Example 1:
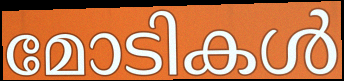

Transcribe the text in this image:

മോടികൾ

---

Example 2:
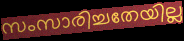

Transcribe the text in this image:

സംസാരിച്ചതേയില്ല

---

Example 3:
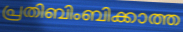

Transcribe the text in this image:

പ്രതിബിംബിക്കാത്ത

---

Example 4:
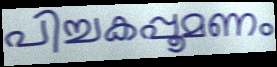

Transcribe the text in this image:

പിച്ചകപ്പൂമണം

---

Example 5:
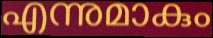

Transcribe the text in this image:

എന്നുമാകും